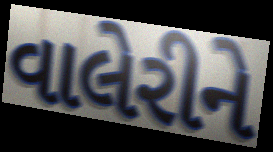
વાલેરીને